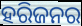
ହରିଜନର